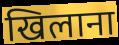
खिलाना